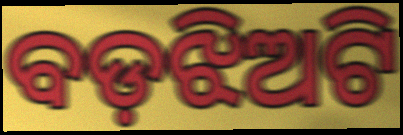
ବଡ଼ଝିଅଟି